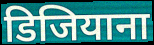
डिजियाना